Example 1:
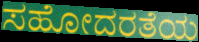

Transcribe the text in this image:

ಸಹೋದರತೆಯ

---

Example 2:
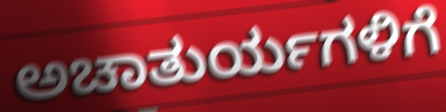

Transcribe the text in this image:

ಅಚಾತುರ್ಯಗಳಿಗೆ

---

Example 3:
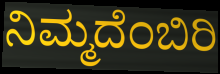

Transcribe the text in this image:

ನಿಮ್ಮದೆಂಬಿರಿ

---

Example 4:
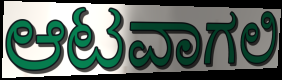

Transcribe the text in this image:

ಆಟವಾಗಲಿ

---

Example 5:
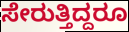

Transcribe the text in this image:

ಸೇರುತ್ತಿದ್ದರೂ